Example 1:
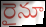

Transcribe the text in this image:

రైనూ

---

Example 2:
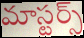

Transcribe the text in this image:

మాస్టర్స్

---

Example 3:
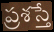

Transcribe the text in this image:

ప్రశస్తే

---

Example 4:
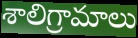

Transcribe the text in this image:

శాలిగ్రామాలు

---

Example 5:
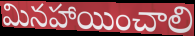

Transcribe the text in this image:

మినహాయించాలి